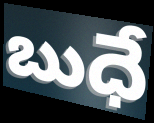
బుధే